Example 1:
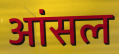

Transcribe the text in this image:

आंसल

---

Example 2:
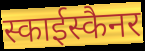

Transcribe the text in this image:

स्काईस्कैनर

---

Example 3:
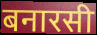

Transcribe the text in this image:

बनारसी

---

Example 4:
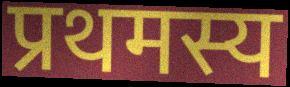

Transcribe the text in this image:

प्रथमस्य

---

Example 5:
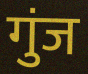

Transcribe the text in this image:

गुंज